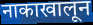
नाकाखालून